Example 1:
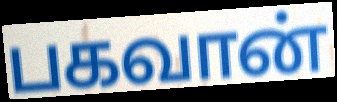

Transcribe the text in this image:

பகவான்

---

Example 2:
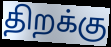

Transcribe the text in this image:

திறக்கு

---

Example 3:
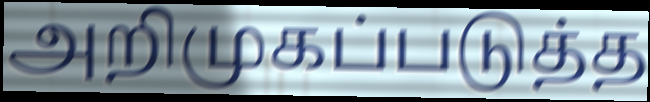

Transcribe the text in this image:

அறிமுகப்படுத்த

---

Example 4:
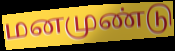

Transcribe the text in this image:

மனமுண்டு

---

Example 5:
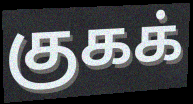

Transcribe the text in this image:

குகக்